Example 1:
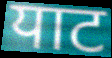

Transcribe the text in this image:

याट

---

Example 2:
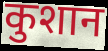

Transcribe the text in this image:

कुशान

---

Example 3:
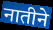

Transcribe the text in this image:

नातीने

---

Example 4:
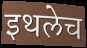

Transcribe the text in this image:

इथलेच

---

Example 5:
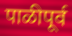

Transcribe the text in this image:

पाळीपूर्व